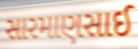
સારમાણસાઈ